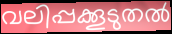
വലിപ്പക്കൂടുതൽ